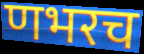
णभरच